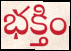
భక్తిం